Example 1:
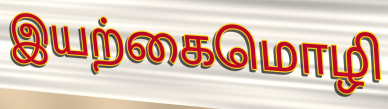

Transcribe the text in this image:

இயற்கைமொழி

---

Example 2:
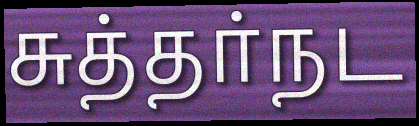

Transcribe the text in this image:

சுத்தர்நட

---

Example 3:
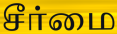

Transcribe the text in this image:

சீர்மை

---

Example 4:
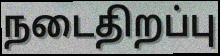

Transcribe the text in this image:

நடைதிறப்பு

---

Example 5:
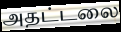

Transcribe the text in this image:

அதட்டலை